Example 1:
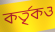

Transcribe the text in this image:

কর্তৃকও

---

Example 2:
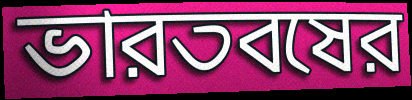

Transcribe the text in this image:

ভারতবষের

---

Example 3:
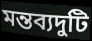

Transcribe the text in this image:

মন্তব্যদুটি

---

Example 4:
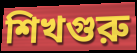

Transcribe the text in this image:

শিখগুরু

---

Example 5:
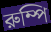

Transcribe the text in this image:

রুম্পি